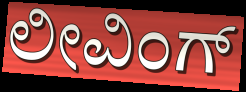
ಲೀವಿಂಗ್